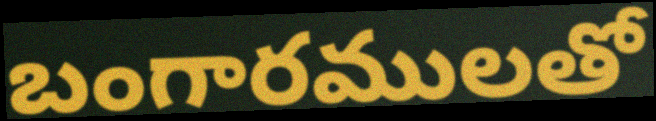
బంగారములతో